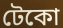
টেকো